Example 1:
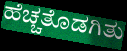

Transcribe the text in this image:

ಹೆಚ್ಚತೊಡಗಿತು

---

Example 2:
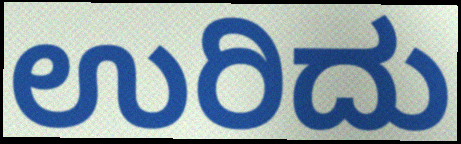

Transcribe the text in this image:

ಉರಿದು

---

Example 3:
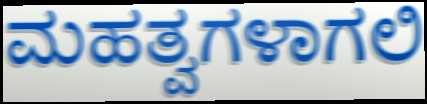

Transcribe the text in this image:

ಮಹತ್ವಗಳಾಗಲಿ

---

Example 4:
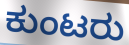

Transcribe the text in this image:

ಕುಂಟರು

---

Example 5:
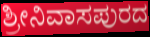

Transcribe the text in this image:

ಶ್ರೀನಿವಾಸಪುರದ